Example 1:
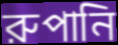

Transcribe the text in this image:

রুপানি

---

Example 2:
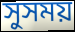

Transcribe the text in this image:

সুসময়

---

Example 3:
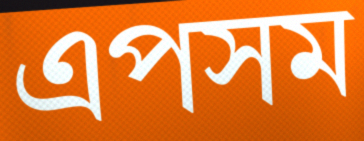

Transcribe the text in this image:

এপসম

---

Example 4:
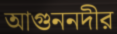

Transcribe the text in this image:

আগুননদীর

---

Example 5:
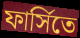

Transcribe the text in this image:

ফার্সিতে